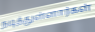
நடித்துள்ளார்கள்